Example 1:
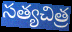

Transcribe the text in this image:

సత్యచిత్ర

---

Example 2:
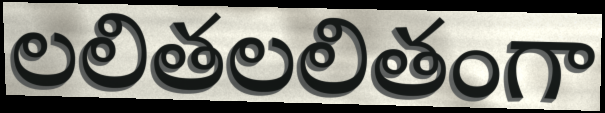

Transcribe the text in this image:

లలితలలితంగా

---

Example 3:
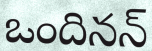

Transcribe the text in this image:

ఒందినన్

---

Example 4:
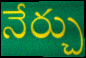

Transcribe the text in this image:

నేర్చు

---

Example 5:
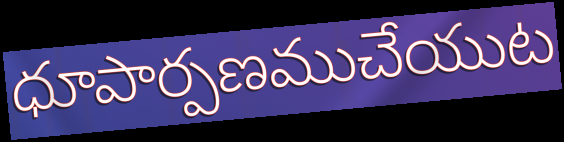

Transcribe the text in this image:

ధూపార్పణముచేయుట